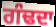
ਗੰਢਦਾ